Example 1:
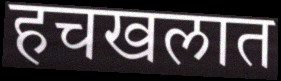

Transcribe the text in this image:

हचखलात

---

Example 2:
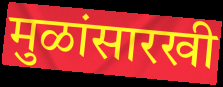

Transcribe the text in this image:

मुळांसारखी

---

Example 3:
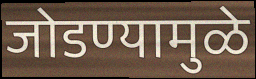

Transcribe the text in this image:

जोडण्यामुळे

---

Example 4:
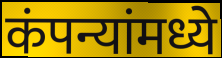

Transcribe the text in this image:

कंपन्यांमध्ये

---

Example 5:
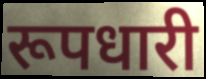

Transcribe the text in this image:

रूपधारी